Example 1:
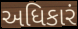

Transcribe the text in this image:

અધિકારં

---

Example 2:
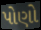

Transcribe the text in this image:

પોણો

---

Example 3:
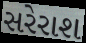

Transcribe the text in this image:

સરેરાશ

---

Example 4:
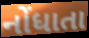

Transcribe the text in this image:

નોંધાતા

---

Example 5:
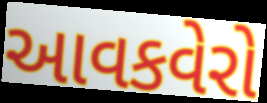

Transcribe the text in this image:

આવકવેરો